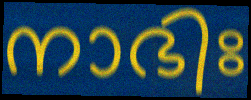
നാഭിഃ